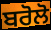
ਬਰੋਲੋ